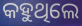
କହୁଥିଲେ